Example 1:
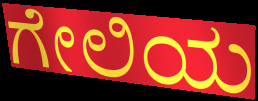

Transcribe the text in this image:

ಗೇಲಿಯ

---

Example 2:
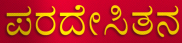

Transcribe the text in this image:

ಪರದೇಸಿತನ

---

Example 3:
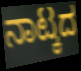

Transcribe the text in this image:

ನಾಟ್ಕದ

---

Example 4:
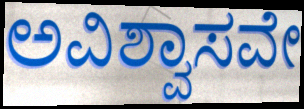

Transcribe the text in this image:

ಅವಿಶ್ವಾಸವೇ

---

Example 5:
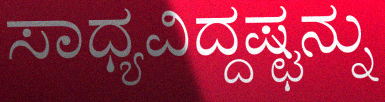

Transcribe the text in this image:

ಸಾಧ್ಯವಿದ್ದಷ್ಟನ್ನು